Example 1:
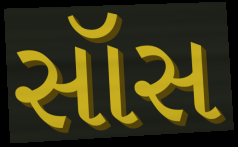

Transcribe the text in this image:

સૉસ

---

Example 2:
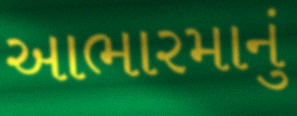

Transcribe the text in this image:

આભારમાનું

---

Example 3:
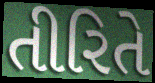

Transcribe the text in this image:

તીરિતે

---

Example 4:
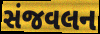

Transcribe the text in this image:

સંજવલન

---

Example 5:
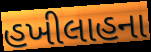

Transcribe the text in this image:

હખીલાહના